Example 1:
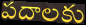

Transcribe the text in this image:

పదాలకు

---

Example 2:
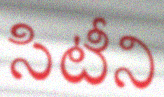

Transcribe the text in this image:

సిటీని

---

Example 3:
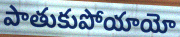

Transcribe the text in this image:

పాతుకుపోయాయో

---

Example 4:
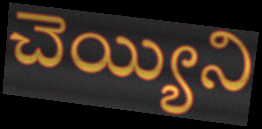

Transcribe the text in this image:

చెయ్యిని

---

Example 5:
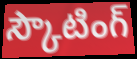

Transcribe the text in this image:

స్కౌటింగ్